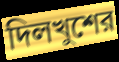
দিলখুশের